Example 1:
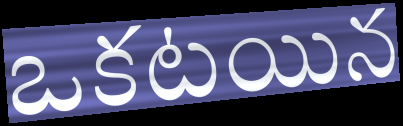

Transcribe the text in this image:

ఒకటయిన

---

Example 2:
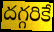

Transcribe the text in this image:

దగ్గరికే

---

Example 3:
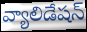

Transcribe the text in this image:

వ్యాలిడేషన్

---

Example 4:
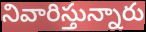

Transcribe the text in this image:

నివారిస్తున్నారు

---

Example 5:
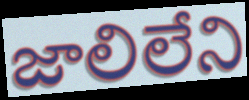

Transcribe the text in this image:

జాలిలేని